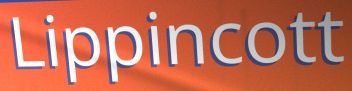
Lippincott